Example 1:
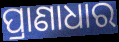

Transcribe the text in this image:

ପ୍ରାଣାଧାର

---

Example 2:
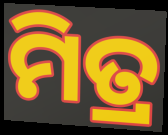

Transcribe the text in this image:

ମିତ୍ର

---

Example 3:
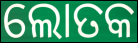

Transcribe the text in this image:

ଲୋତକ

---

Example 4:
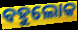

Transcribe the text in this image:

ବହୁଲୋକ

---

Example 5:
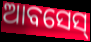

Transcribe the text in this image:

ଆବସେସ୍